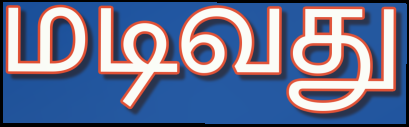
மடிவது